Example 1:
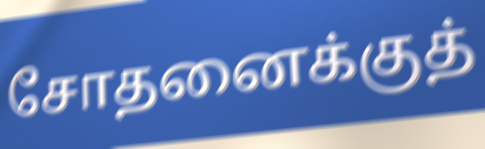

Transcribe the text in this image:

சோதனைக்குத்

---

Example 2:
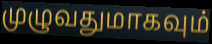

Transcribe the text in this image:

முழுவதுமாகவும்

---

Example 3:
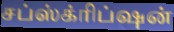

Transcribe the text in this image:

சப்ஸ்க்ரிப்ஷன்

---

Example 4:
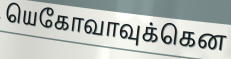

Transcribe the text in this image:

யெகோவாவுக்கென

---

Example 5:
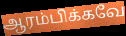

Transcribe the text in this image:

ஆரம்பிக்கவே